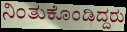
ನಿಂತುಕೊಂಡಿದ್ದರು